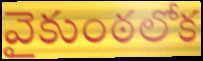
వైకుంఠలోక